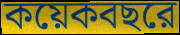
কয়েকবছরে